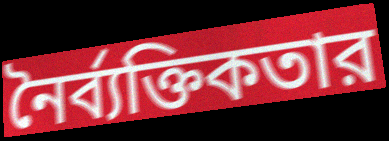
নৈর্ব্যক্তিকতার